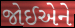
જોઈએને